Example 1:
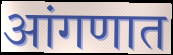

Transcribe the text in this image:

आंगणात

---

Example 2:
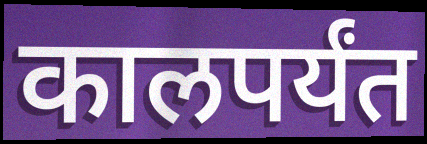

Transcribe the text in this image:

कालपर्यंत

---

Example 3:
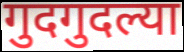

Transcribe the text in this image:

गुदगुदल्या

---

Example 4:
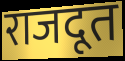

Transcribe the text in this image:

राजदूत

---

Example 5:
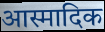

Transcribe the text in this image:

आस्मादिक